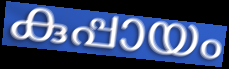
കുപ്പായം